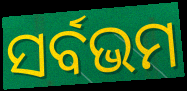
ସର୍ବଭମ